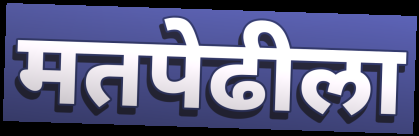
मतपेढीला